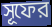
সূফের